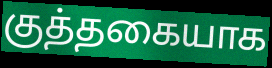
குத்தகையாக